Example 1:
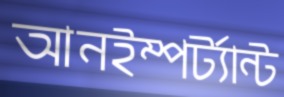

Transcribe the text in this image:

আনইম্পর্ট্যান্ট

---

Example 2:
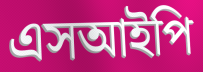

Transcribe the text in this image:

এসআইপি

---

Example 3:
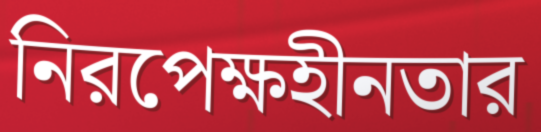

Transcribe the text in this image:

নিরপেক্ষহীনতার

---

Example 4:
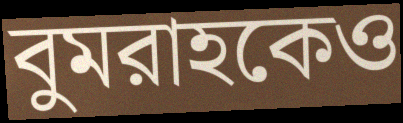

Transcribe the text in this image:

বুমরাহকেও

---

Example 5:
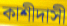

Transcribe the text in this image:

কাশীদাসী